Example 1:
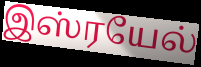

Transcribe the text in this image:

இஸ்ரயேல்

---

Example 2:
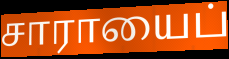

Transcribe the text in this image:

சாராயைப்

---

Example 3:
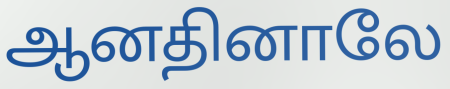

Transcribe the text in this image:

ஆனதினாலே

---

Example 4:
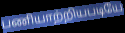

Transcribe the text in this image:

பணியாற்றியபடியே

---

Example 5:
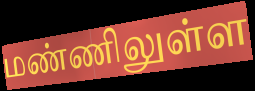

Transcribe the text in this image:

மண்ணிலுள்ள